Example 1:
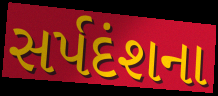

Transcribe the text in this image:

સર્પદંશના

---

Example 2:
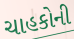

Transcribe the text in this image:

ચાહકોની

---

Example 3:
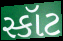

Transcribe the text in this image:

સ્કૉટ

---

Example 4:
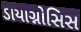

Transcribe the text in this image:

ડાયાગ્નોસિસ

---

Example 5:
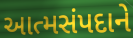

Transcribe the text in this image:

આત્મસંપદાને